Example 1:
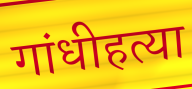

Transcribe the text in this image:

गांधीहत्या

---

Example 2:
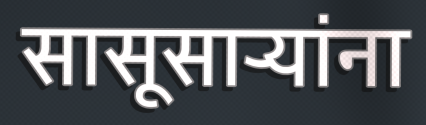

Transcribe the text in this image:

सासूसाऱ्यांना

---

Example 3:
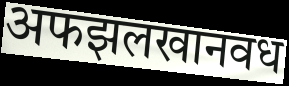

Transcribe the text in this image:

अफझलखानवध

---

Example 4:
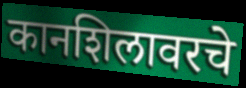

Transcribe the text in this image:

कानशिलावरचे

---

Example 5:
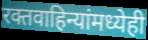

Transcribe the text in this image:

रक्तवाहिन्यांमध्येही